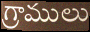
గ్రాములు